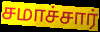
சமாச்சார்